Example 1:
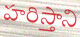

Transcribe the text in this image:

హరిస్తాని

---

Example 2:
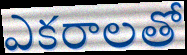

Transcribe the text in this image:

ఎకరాలతో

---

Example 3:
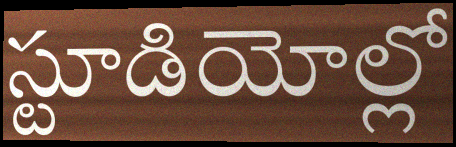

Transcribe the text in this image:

స్టూడియోల్లో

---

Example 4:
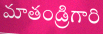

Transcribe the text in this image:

మాతండ్రిగారి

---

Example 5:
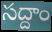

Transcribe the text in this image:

సద్దాం